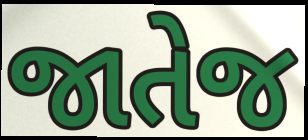
જાતેજ